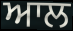
ਆਲ